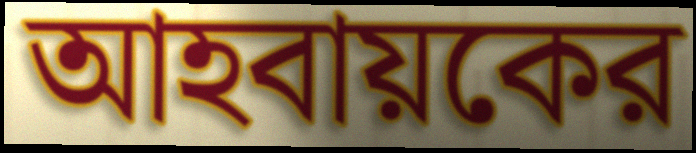
আহবায়কের